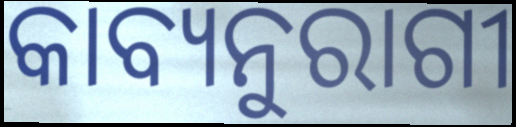
କାବ୍ୟନୁରାଗୀ